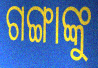
ଗଙ୍ଗାଙ୍କୁ